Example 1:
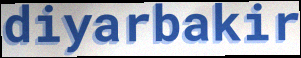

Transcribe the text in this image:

diyarbakir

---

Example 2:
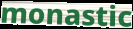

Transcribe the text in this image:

monastic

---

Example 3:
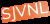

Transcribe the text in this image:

SJVNL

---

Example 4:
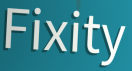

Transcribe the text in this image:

Fixity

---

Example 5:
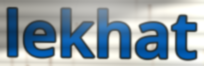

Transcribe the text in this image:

lekhat